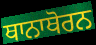
ਥਾਨਾਥੋਰਨ